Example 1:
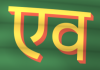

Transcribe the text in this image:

एव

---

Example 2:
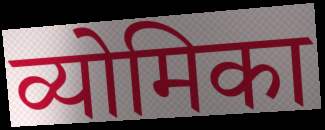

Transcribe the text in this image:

व्योमिका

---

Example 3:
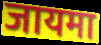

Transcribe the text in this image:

जायमा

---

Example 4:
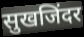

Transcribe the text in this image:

सुखजिंदर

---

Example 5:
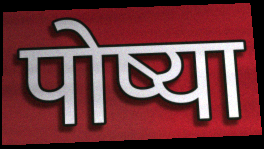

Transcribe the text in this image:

पोष्या